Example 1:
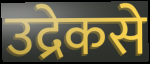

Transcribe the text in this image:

उद्रेकसे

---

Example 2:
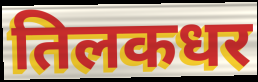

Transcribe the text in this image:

तिलकधर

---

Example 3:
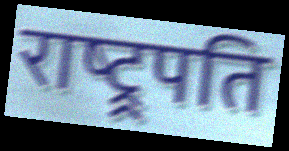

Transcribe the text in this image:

राष्ट्र्रपति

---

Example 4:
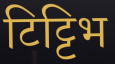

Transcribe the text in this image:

टिट्टिभ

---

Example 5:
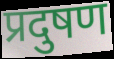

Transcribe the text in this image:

प्रदुषण